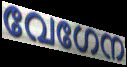
വേഗേന